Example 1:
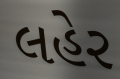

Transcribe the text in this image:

લહેર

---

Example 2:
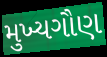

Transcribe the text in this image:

મુખ્યગૌણ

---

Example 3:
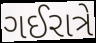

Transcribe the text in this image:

ગઈરાત્રે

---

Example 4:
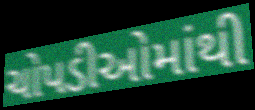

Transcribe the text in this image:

ચોપડીઓમાંથી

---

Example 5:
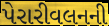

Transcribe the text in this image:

પેરારીવલનની